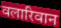
वलारिवान